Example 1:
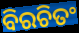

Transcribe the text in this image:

ବିରଚିତଂ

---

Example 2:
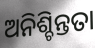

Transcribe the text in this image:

ଅନିଶ୍ଚିନ୍ତତା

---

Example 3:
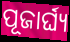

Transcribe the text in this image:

ପୂଜାର୍ଘ୍ୟ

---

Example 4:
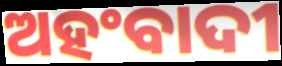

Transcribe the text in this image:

ଅହଂବାଦୀ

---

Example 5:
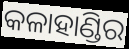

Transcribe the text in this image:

କଳାହାଣ୍ଡିର